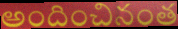
అందించినంత